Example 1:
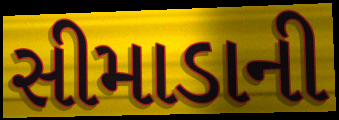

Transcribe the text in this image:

સીમાડાની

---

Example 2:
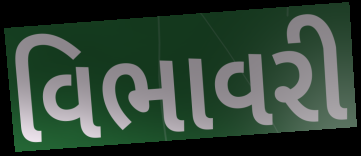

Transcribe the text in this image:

વિભાવરી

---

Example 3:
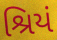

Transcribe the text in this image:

શ્રિયં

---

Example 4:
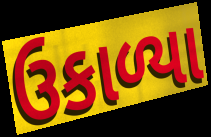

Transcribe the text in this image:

ઉકાળ્યા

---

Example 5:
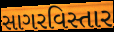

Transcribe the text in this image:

સાગરવિસ્તાર